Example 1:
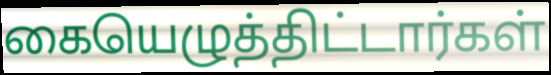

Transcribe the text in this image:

கையெழுத்திட்டார்கள்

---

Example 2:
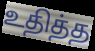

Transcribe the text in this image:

உதித்த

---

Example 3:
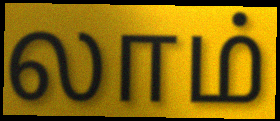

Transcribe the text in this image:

லாம்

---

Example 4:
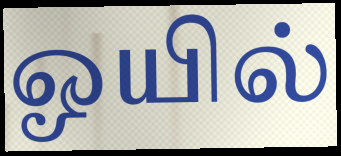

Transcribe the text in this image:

ஓயில்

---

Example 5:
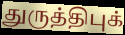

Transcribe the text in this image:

துருத்திபுக்